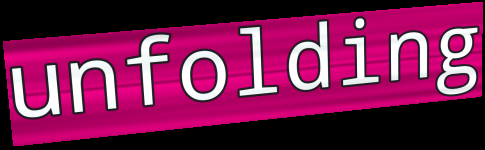
unfolding